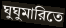
ঘুঘুমারিতে